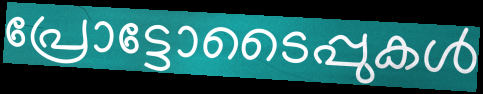
പ്രോട്ടോടൈപ്പുകൾ